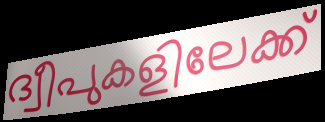
ദ്വീപുകളിലേക്ക്